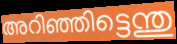
അറിഞ്ഞിട്ടെന്തു